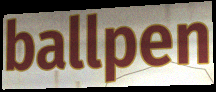
ballpen